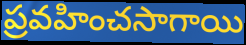
ప్రవహించసాగాయి